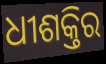
ଧୀଶକ୍ତିର